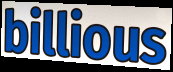
billious